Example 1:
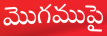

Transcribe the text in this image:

మొగముపై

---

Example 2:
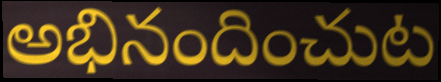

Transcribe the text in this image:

అభినందించుట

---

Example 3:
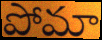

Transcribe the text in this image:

పోమా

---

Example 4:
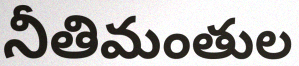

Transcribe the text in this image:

నీతిమంతుల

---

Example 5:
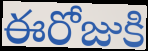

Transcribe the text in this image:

ఈరోజుకి